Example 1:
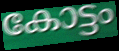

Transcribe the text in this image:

കോട്ടം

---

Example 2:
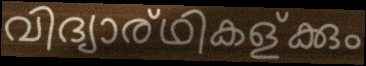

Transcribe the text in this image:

വിദ്യാര്ഥികള്ക്കും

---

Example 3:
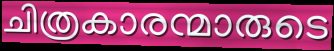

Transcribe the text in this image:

ചിത്രകാരന്മാരുടെ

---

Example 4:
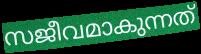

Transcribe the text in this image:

സജീവമാകുന്നത്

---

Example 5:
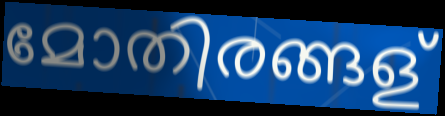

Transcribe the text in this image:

മോതിരങ്ങള്